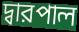
দ্বারপাল